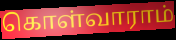
கொள்வாராம்